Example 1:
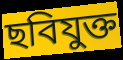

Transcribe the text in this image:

ছবিযুক্ত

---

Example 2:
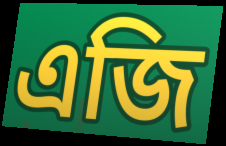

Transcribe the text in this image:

এজি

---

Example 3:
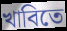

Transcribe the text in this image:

খাবিতে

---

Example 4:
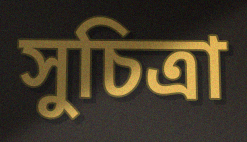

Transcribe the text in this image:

সুচিত্রা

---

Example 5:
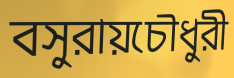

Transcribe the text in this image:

বসুরায়চৌধুরী